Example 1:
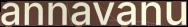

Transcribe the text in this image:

annavanu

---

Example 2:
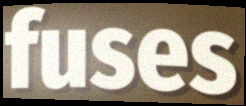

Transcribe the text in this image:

fuses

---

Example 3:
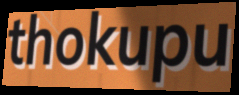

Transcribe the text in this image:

thokupu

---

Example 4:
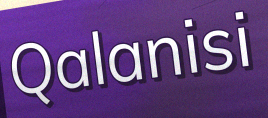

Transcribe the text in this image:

Qalanisi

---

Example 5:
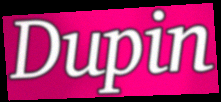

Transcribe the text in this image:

Dupin